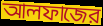
আলফাজের